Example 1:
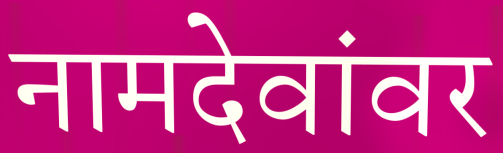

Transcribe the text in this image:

नामदेवांवर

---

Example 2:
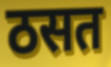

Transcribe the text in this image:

ठसत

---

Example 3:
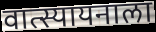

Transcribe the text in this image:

वात्स्यायनाला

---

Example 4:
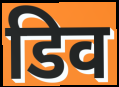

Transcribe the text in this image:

डिव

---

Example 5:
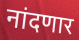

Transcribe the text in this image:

नांदणार